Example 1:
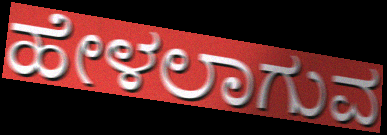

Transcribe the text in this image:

ಹೇಳಲಾಗುವ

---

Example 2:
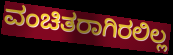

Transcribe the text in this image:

ವಂಚಿತರಾಗಿರಲಿಲ್ಲ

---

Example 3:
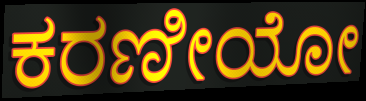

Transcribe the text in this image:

ಕರಣೀಯೋ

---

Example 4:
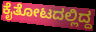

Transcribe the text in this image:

ಕೈತೋಟದಲ್ಲಿದ್ದ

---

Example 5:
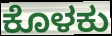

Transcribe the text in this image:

ಕೊಳಕು